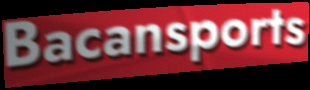
Bacansports